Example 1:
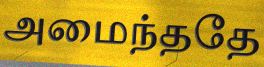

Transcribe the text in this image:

அமைந்ததே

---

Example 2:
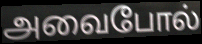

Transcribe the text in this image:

அவைபோல்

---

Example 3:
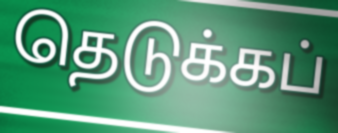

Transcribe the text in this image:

தெடுக்கப்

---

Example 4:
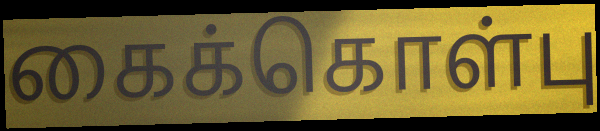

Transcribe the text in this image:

கைக்கொள்பு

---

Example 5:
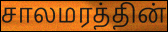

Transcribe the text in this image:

சாலமரத்தின்